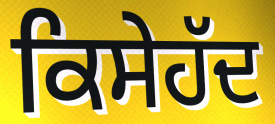
ਕਿਸੇਹੱਦ